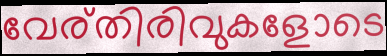
വേര്തിരിവുകളോടെ